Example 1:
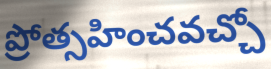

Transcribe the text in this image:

ప్రోత్సహించవచ్చో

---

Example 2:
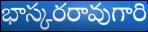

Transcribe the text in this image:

భాస్కరరావుగారి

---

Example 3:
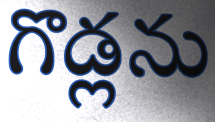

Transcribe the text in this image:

గొడ్లను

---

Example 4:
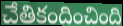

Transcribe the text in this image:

చేతికందించింది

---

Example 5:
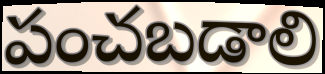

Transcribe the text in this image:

పంచబడాలి